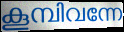
കൂമ്പിവന്നേ